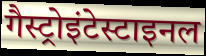
गैस्ट्रोइंटेस्टाइनल